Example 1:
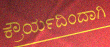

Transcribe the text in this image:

ಕ್ರೌರ್ಯದಿಂದಾಗಿ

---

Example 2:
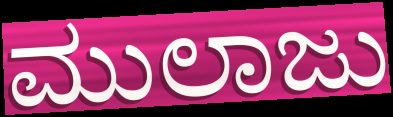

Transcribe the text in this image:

ಮುಲಾಜು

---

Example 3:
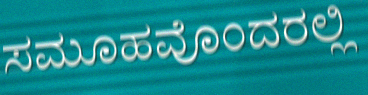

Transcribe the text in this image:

ಸಮೂಹವೊಂದರಲ್ಲಿ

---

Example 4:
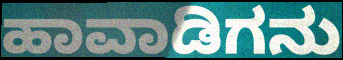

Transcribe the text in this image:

ಹಾವಾಡಿಗನು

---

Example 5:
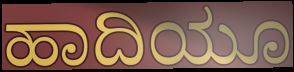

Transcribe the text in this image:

ಹಾದಿಯೂ